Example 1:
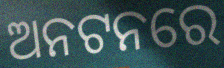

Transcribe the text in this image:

ଅନଟନରେ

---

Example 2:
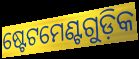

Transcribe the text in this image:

ଷ୍ଟେଟମେଣ୍ଟଗୁଡ଼ିକ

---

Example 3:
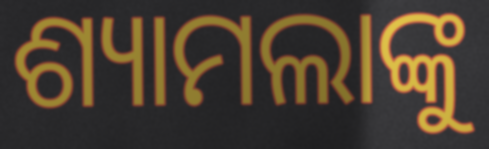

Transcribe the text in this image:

ଶ୍ୟାମଲାଙ୍କୁ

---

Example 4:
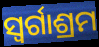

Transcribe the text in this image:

ସ୍ୱର୍ଗାଶ୍ରମ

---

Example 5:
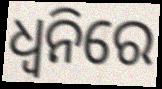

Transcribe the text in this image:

ଧ୍ୱନିରେ